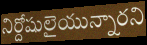
నిర్దోషులైయున్నారని